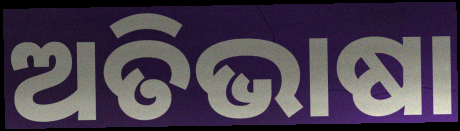
ଅତିଭାଷା